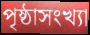
পৃষ্ঠাসংখ্যা